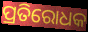
ପ୍ରତିରୋଧକ